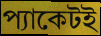
প্যাকেটই